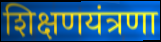
शिक्षणयंत्रणा